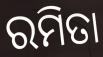
ରମିତା